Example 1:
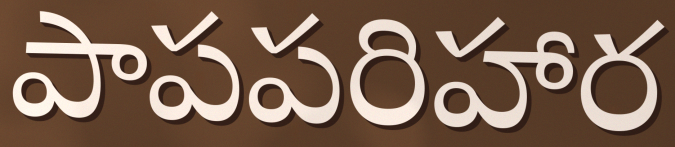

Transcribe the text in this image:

పాపపరిహార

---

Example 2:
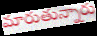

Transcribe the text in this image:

మారుతున్నారు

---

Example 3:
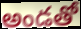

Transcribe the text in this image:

అండతో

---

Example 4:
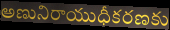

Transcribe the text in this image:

అణునిరాయుధీకరణకు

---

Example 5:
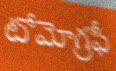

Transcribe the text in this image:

టోమోగ్రఫీ